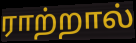
ராற்றால்